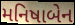
મનિષાબેન